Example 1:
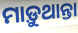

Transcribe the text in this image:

ମାଡ଼ୁଥାନ୍ତା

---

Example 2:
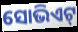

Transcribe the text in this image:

ସୋଭିଏଟ୍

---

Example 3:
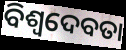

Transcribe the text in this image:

ବିଶ୍ୱଦେବତା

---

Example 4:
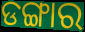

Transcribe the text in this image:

ଡଙ୍ଗାର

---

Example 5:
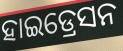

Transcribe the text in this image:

ହାଇଡ୍ରେସନ